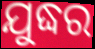
ଯୁଦ୍ଧର